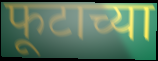
फूटाच्या